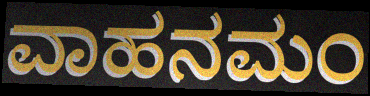
ವಾಹನಮಂ